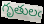
గృతులఁ